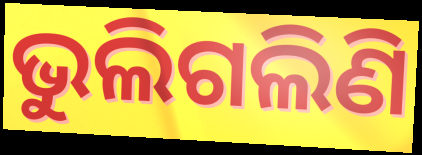
ଭୁଲିଗଲିଣି